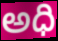
అధి